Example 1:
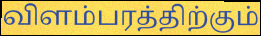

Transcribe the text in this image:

விளம்பரத்திற்கும்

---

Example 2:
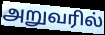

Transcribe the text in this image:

அறுவரில்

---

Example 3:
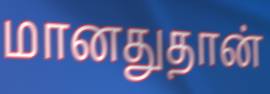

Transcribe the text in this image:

மானதுதான்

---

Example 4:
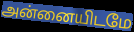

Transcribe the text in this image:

அன்னையிடமே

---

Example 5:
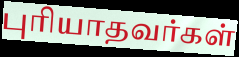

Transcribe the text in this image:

புரியாதவர்கள்